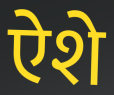
ऐशे